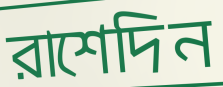
রাশেদিন